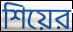
শিয়ের